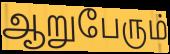
ஆறுபேரும்